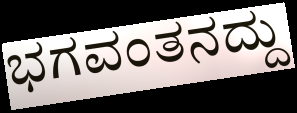
ಭಗವಂತನದ್ದು